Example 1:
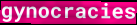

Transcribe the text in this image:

gynocracies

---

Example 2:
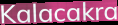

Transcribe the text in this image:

Kalacakra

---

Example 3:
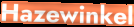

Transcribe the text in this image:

Hazewinkel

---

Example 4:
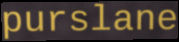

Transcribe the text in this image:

purslane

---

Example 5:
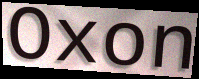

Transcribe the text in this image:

Oxon